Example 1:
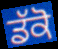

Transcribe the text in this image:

ਡੱਕੋ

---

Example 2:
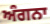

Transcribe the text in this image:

ਅੰਗਨਾ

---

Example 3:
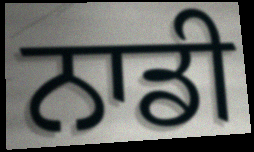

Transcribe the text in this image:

ਨਾਡੀ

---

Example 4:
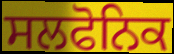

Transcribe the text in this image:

ਸਲਫੋਨਿਕ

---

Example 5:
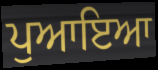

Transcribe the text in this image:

ਪੁਆਇਆ